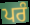
ਪਰੰ